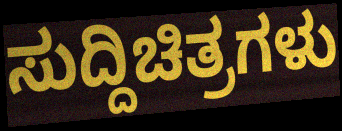
ಸುದ್ದಿಚಿತ್ರಗಳು